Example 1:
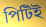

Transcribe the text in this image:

পিটিই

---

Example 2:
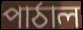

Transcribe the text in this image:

পাঠাল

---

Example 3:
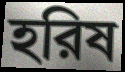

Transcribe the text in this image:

হরিষ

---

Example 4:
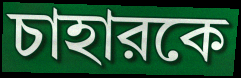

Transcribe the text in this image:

চাহারকে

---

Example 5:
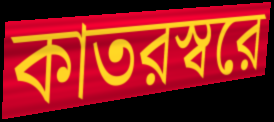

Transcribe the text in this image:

কাতরস্বরে